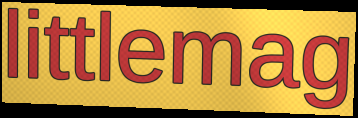
littlemag